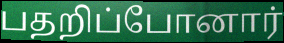
பதறிப்போனார்